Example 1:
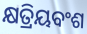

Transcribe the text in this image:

କ୍ଷତ୍ରିୟବଂଶ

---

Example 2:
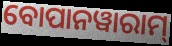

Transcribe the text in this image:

ବୋପାନୱାରାମ୍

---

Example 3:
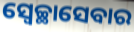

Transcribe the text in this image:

ସ୍ୱେଚ୍ଛାସେବାର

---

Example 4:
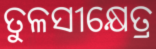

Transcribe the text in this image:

ତୁଳସୀକ୍ଷେତ୍ର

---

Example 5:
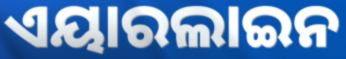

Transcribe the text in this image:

ଏୟାରଲାଇନ